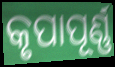
କୃପାପୂର୍ଣ୍ଣ